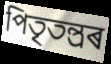
পিতৃতন্ত্ৰৰ